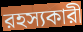
রহস্যকারী